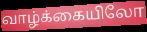
வாழ்க்கையிலோ